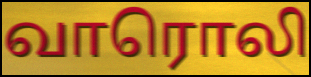
வாரொலி